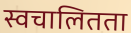
स्वचालितता